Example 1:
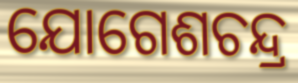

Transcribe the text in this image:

ଯୋଗେଶଚନ୍ଦ୍ର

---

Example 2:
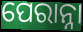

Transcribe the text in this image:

ପେରାନ୍ନା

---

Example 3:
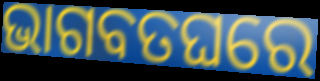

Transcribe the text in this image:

ଭାଗବତଘରେ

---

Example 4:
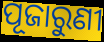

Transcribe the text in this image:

ପୂଜାରୁଣୀ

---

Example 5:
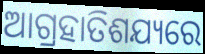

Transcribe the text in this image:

ଆଗ୍ରହାତିଶଯ୍ୟରେ